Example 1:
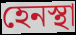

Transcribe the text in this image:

হেনস্থা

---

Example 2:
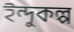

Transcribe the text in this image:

ইন্দুকল্প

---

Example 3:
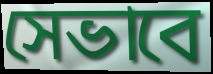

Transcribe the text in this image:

সেভাবে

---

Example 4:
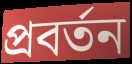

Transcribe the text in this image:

প্ৰবৰ্তন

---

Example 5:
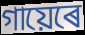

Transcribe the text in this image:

গায়েৰে